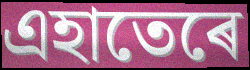
এহাতেৰে